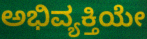
ಅಭಿವ್ಯಕ್ತಿಯೇ